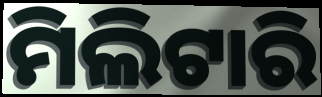
ମିଲିଟାରି